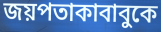
জয়পতাকাবাবুকে